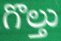
గొల్తు